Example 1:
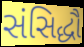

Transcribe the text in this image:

સંસિદ્ધૌ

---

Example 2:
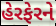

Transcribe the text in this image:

હેરફેરને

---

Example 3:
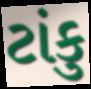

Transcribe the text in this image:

ટાંકુ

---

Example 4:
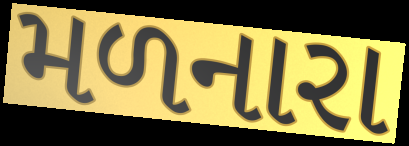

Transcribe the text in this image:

મળનારા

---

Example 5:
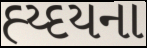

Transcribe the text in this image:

હ્ય્દયના